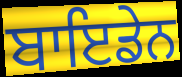
ਬਾਇਡੇਨ